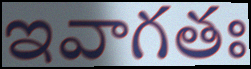
ఇవాగతః